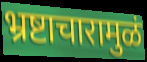
भ्रष्टाचारामुळं